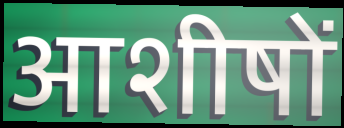
आशीषों